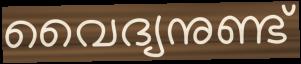
വൈദ്യനുണ്ട്